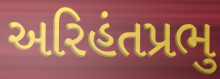
અરિહંતપ્રભુ